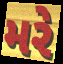
મરે